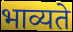
भाव्यते